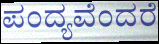
ಪಂದ್ಯವೆಂದರೆ